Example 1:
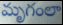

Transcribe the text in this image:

మృగంలా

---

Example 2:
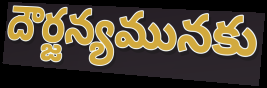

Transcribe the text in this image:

దౌర్జన్యమునకు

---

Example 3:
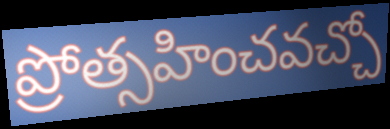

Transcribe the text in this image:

ప్రోత్సహించవచ్చో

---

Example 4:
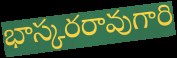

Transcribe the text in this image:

భాస్కరరావుగారి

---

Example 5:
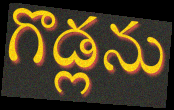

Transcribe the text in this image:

గొడ్లను